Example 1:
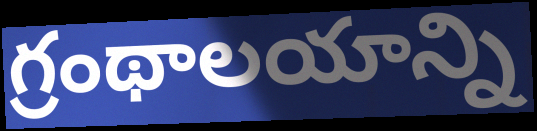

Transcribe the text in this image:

గ్రంథాలయాన్ని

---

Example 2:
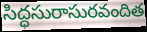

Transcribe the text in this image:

సిద్ధసురాసురవందిత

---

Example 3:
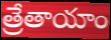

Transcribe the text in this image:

త్రేతాయాం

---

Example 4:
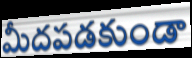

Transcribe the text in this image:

మీదపడకుండా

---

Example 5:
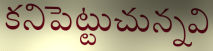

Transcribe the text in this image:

కనిపెట్టుచున్నవి